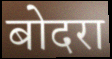
बोदरा